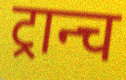
ट्रान्च